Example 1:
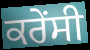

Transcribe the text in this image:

ਕਰੇੰਸੀ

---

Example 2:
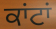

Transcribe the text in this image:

ਕਾਂਟਾਂ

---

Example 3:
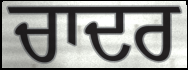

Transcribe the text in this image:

ਚਾਦਰ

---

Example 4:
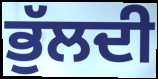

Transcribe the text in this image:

ਭੁੱਲਦੀ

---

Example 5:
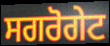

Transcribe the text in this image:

ਸਗਰੋਗੇਟ